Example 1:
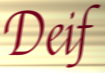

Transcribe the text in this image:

Deif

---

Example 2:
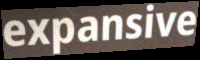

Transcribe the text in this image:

expansive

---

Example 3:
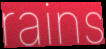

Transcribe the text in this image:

rains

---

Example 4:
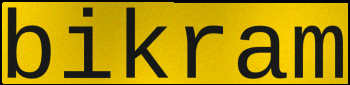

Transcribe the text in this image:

bikram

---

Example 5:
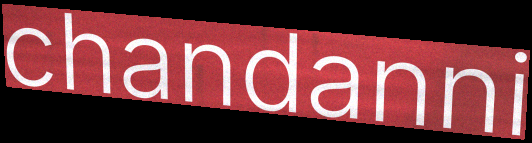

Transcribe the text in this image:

chandanni